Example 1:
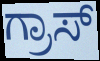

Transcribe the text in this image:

ಗ್ರಾಸ್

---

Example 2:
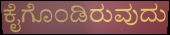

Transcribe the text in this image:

ಕೈಗೊಂಡಿರುವುದು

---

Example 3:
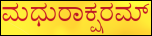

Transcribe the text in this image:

ಮಧುರಾಕ್ಷರಮ್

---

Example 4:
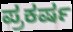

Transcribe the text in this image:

ಪ್ರಕರ್ಷ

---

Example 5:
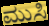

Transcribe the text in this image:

ಮುಸಿ